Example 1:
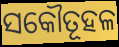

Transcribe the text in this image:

ସକୌତୂହଳ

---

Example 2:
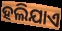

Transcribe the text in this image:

ହଲିଯାଏ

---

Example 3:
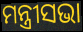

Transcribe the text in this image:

ମନ୍ତ୍ରୀସଭା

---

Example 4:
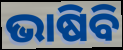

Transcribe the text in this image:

ଭାଷିବି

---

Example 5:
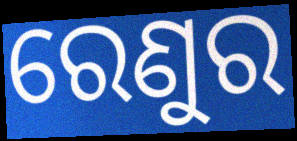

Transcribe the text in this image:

ରେଣୁର